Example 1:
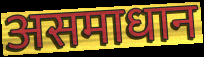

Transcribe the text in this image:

असमाधान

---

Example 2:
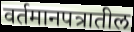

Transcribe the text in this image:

वर्तमानपत्रातील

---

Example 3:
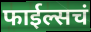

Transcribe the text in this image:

फाईल्सचं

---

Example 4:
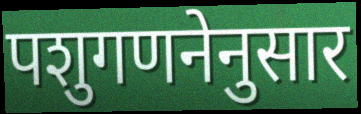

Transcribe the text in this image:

पशुगणनेनुसार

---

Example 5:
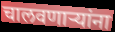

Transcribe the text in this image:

चालवणार्‍यांना